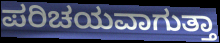
ಪರಿಚಯವಾಗುತ್ತಾ